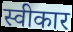
स्वीकार